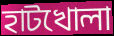
হাটখোলা